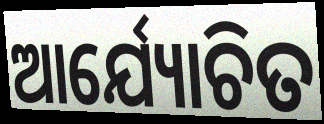
ଆର୍ଯ୍ୟୋଚିତ